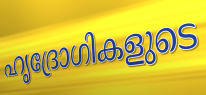
ഹൃദ്രോഗികളുടെ